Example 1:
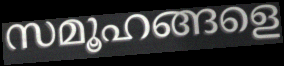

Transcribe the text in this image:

സമൂഹങ്ങളെ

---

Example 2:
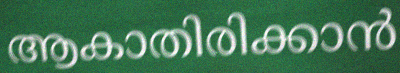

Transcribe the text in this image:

ആകാതിരിക്കാൻ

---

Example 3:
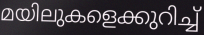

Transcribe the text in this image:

മയിലുകളെക്കുറിച്ച്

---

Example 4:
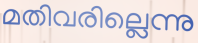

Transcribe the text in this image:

മതിവരില്ലെന്നു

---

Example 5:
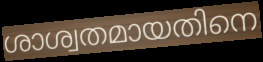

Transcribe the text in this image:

ശാശ്വതമായതിനെ